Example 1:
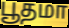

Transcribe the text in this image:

பூதமா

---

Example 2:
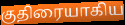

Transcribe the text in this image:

குதிரையாகிய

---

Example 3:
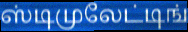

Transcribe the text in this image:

ஸ்டிமுலேட்டிங்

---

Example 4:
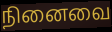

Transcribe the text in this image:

நினைவை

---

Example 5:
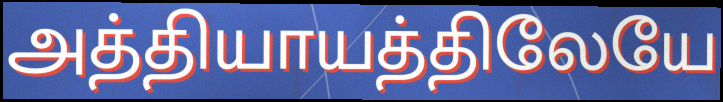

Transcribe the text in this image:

அத்தியாயத்திலேயே